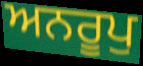
ਅਨਰੂਪੁ